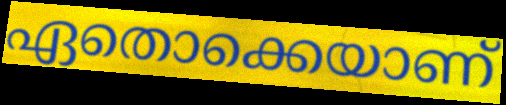
ഏതൊക്കെയാണ്